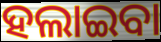
ହଲାଇବା